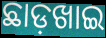
ଛାଡ଼ଖାଇ